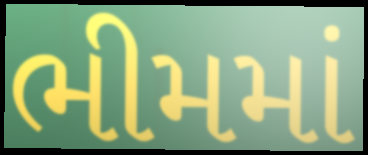
ભીમમાં